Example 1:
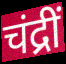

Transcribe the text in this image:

चंद्रीं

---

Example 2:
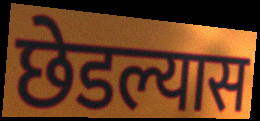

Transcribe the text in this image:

छेडल्यास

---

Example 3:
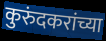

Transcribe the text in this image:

कुरुंदकरांच्या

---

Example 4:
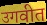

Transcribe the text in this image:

उगवीत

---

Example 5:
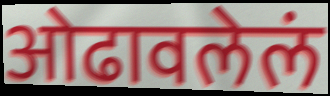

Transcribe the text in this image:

ओढावलेलं